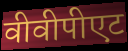
वीवीपीएट